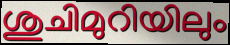
ശുചിമുറിയിലും